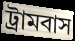
ট্রামবাস